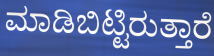
ಮಾಡಿಬಿಟ್ಟಿರುತ್ತಾರೆ